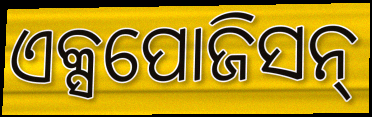
ଏକ୍ସପୋଜିସନ୍